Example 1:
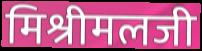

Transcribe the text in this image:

मिश्रीमलजी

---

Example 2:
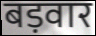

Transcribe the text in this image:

बड़वार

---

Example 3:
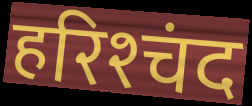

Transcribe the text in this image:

हरिश्चंद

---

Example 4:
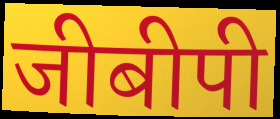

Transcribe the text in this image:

जीबीपी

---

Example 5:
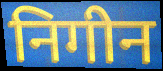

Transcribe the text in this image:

निगीन